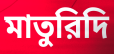
মাতুরিদি